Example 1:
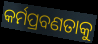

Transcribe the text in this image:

କର୍ମପ୍ରବଣତାକୁ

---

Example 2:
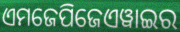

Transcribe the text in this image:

ଏମଜେପିଜେଏୱାଇର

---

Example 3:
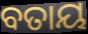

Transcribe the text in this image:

ବତାୟ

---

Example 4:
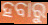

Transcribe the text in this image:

ହବାରୁ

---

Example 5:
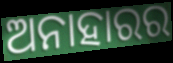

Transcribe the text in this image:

ଅନାହାରର